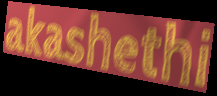
akashethi